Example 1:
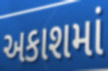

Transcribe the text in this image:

અકાશમાં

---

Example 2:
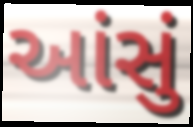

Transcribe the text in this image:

આંસું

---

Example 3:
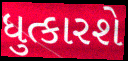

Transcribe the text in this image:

ધુત્કારશે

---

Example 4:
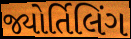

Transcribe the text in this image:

જ્યોર્તિલિંગ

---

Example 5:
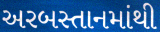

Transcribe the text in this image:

અરબસ્તાનમાંથી